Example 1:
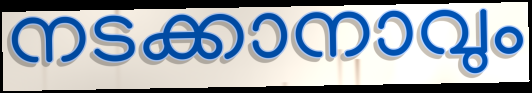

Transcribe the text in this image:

നടക്കാനാവും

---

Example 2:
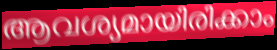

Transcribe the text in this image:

ആവശ്യമായിരിക്കാം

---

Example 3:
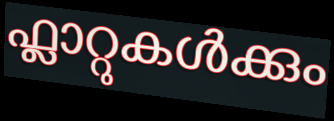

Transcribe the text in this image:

ഫ്ലാറ്റുകൾക്കും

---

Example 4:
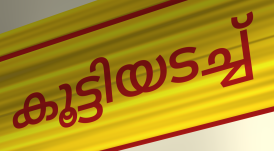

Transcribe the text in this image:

കൂട്ടിയടച്ച്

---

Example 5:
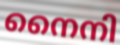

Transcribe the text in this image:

നൈനി